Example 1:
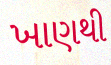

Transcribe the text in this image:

ખાણથી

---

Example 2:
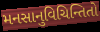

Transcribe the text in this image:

મનસાનુવિચિન્તિતો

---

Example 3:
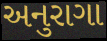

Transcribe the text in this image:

અનુરાગા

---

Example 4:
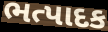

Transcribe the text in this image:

ભત્પાદક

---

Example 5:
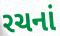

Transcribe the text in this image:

રચનાં